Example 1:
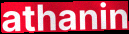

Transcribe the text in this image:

athanin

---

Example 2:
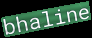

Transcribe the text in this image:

bhaline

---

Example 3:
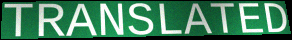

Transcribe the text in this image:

TRANSLATED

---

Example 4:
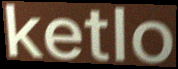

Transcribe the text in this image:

ketlo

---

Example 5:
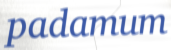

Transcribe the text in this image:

padamum